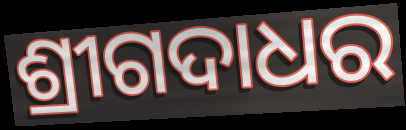
ଶ୍ରୀଗଦାଧର